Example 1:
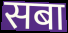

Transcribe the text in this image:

सबा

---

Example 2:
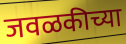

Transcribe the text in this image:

जवळकीच्या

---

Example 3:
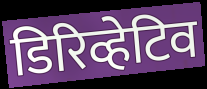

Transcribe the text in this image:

डिरिव्हेटिव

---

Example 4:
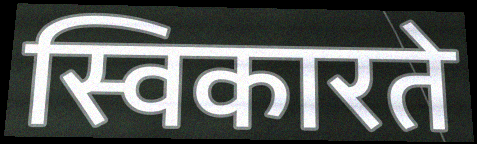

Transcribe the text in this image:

स्विकारते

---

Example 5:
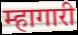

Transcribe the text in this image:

म्हागारी